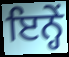
ਇਨ੍ਹੇਂ